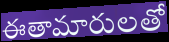
ఈతామారులతో